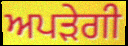
ਅਪੜੇਗੀ